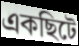
একছিটে